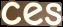
ces